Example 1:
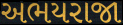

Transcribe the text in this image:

અભયરાજા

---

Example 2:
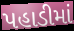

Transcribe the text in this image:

પહાડીમાં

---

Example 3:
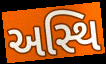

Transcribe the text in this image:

અસ્થિ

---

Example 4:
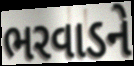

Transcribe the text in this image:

ભરવાડને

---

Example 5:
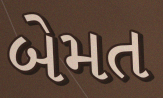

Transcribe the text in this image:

બેમત